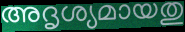
അദൃശ്യമായതു